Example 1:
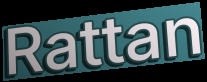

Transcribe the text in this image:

Rattan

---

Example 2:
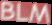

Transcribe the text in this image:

BLM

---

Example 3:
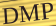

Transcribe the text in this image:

DMP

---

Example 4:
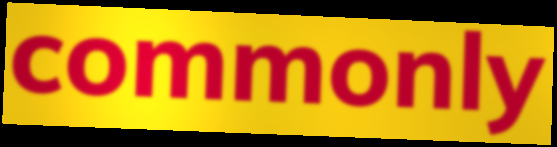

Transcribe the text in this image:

commonly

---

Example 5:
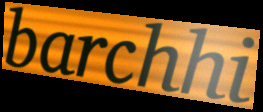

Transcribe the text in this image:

barchhi